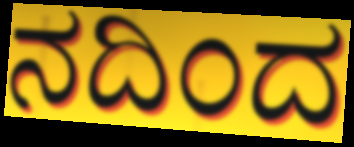
ನದಿಂದ